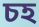
চহ